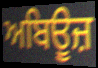
ਅਬਿਊਜ਼